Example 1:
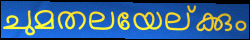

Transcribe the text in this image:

ചുമതലയേല്ക്കും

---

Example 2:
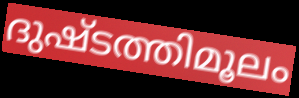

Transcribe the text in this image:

ദുഷ്ടത്തിമൂലം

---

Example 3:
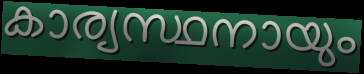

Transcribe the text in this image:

കാര്യസ്ഥനായും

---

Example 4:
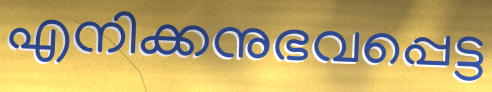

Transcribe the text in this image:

എനിക്കനുഭവപ്പെട്ട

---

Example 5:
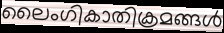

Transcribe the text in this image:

ലൈംഗികാതിക്രമങ്ങൾ